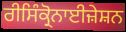
ਰੀਸਿੰਕ੍ਰੋਨਾਈਜ਼ੇਸ਼ਨ